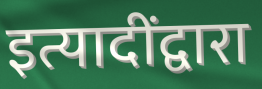
इत्यादींद्वारा